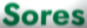
Sores